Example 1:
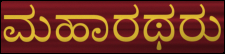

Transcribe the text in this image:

ಮಹಾರಥರು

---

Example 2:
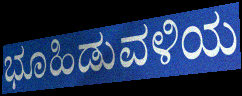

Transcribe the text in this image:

ಭೂಹಿಡುವಳಿಯ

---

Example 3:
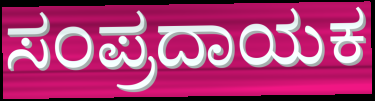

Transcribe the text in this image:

ಸಂಪ್ರದಾಯಕ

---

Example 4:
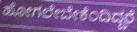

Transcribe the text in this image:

ಹೋಗಲೇಬೇಕೆಂದಿದ್ದರೆ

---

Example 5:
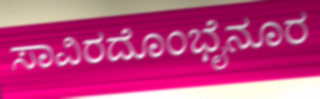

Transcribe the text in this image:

ಸಾವಿರದೊಂಭೈನೂರ